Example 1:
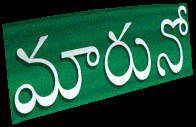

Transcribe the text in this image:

మారునో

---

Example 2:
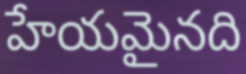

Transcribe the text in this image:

హేయమైనది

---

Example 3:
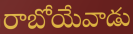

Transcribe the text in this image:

రాబోయేవాడు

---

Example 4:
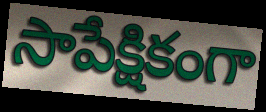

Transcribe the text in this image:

సాపేక్షికంగా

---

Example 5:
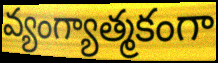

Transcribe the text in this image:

వ్యంగ్యాత్మకంగా